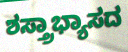
ಶಸ್ತ್ರಾಭ್ಯಾಸದ